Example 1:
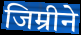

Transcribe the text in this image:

जिम्रीने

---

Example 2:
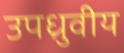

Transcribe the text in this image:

उपध्रुवीय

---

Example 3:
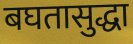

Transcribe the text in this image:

बघतासुद्धा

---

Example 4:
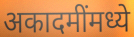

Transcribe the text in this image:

अकादमींमध्ये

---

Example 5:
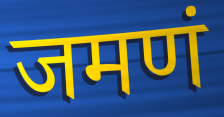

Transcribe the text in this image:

जमणं